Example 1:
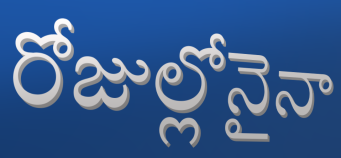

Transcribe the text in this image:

రోజుల్లోనైనా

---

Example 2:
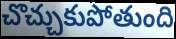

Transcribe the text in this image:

చొచ్చుకుపోతుంది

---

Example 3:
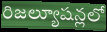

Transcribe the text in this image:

రిజల్యూషన్లలో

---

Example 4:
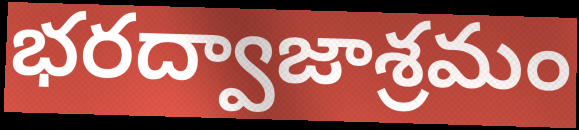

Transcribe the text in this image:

భరద్వాజాశ్రమం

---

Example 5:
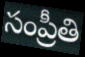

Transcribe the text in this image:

సంప్రీతి